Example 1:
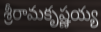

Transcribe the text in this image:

శ్రీరామకృష్ణయ్య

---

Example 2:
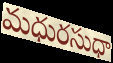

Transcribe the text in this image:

మధురసుధా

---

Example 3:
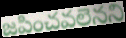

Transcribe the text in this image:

జపించవలెనని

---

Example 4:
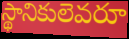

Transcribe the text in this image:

స్థానికులెవరూ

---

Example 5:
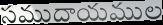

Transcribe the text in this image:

సముదాయముల